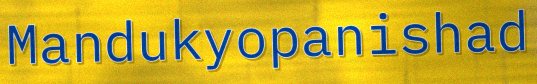
Mandukyopanishad